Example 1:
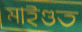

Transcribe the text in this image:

মাইণ্ডত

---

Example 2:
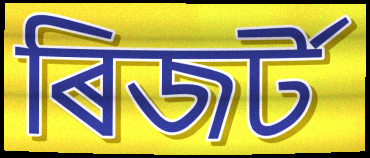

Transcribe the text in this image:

ৰিজৰ্ট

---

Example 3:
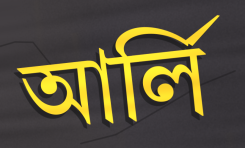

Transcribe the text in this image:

আৰ্লি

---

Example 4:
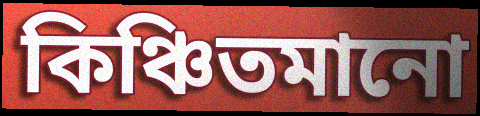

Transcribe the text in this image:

কিঞ্চিতমানো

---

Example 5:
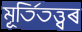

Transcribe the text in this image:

মূৰ্তিতত্ত্বৰ